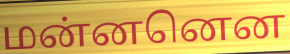
மன்னனென